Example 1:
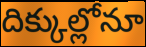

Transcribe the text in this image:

దిక్కుల్లోనూ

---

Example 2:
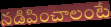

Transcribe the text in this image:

నడిపించాలంటే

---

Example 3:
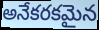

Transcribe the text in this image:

అనేకరకమైన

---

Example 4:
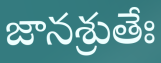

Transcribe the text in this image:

జానశ్రుతేః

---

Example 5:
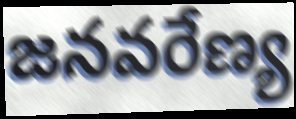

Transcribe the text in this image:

జనవరేణ్య